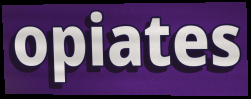
opiates